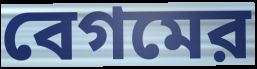
বেগমের